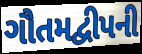
ગૌતમદ્વીપની